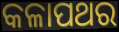
କଳାପଥର